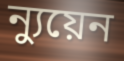
ন্যুয়েন